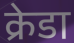
क्रेडा